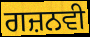
ਗਜ਼ਨਵੀ